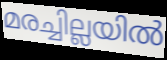
മരച്ചില്ലയിൽ